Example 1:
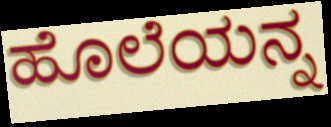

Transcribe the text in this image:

ಹೊಲೆಯನ್ನ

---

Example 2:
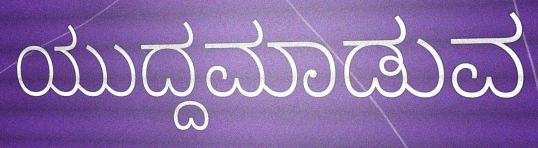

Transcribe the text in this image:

ಯುದ್ದಮಾಡುವ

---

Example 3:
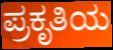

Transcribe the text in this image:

ಪ್ರಕೃತಿಯ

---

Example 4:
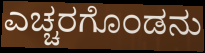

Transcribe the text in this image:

ಎಚ್ಚರಗೊಂಡನು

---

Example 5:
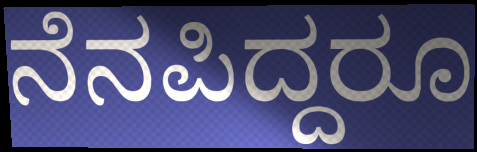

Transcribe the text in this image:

ನೆನಪಿದ್ದರೂ